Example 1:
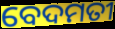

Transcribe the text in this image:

ବେଦମତୀ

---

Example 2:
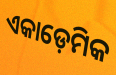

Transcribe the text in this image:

ଏକାଡ଼େମିକ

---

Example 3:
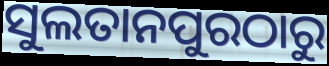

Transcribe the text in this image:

ସୁଲତାନପୁରଠାରୁ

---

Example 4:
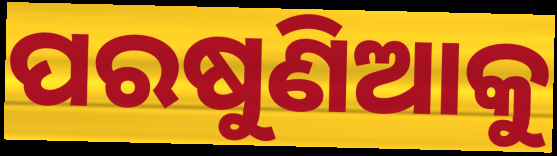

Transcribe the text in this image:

ପରଷୁଣିଆକୁ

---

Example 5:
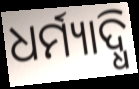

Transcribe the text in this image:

ଧର୍ମ୍ୟାଦ୍ଧି